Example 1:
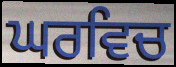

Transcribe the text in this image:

ਘਰਵਿਚ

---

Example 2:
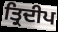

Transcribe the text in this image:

ਤ੍ਰਿਦੀਪ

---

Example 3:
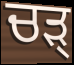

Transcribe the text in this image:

ਚੜ੍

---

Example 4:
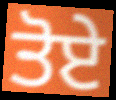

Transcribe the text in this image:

ਤੋਏ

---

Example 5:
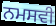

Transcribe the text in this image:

ਨਮਸਵੀ